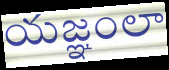
యజ్ఞంలా